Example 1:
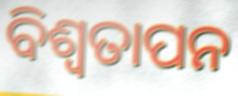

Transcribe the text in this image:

ବିଶ୍ବତାପନ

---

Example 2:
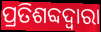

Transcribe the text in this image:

ପ୍ରତିଶବ୍ଦଦ୍ୱାରା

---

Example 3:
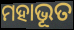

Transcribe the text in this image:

ମହାଭୂତ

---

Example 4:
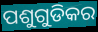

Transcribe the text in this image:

ପଶୁଗୁଡିକର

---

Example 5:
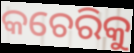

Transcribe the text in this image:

କଚେରିକୁ